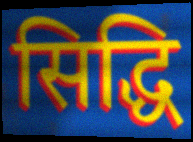
सिद्धि